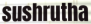
sushrutha